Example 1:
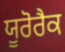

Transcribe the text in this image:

ਯੂਰੋਰੈਕ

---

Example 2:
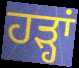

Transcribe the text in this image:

ਹੜ੍ਹਾਂ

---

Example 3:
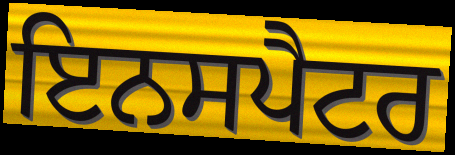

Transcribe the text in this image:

ਇਨਸਪੈਟਰ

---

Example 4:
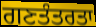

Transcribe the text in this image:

ਗਣਤੰਤਰਤਾ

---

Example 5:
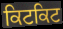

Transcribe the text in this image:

ਕਿਟਕਿਟ